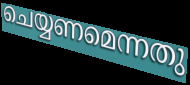
ചെയ്യണമെന്നതു